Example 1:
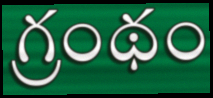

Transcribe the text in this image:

గ్రంథం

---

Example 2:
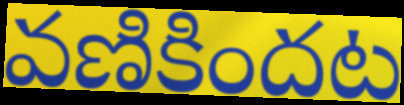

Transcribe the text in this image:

వణికిందట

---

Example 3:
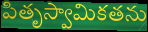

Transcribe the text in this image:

పితృస్వామికతను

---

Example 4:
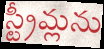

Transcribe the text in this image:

స్ట్రీమ్లను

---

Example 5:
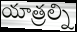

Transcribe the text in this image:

యాత్రల్ని